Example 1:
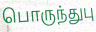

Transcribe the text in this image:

பொருந்துபு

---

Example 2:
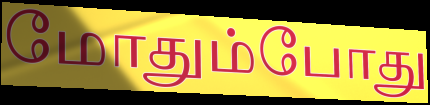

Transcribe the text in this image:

மோதும்போது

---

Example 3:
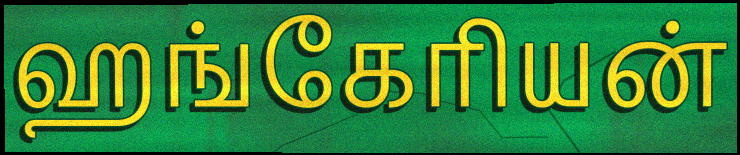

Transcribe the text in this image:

ஹங்கேரியன்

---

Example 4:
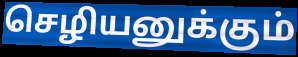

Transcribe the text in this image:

செழியனுக்கும்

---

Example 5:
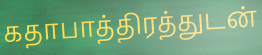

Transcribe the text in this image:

கதாபாத்திரத்துடன்